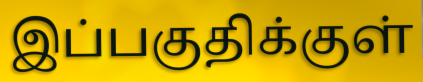
இப்பகுதிக்குள்